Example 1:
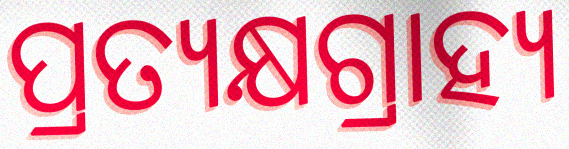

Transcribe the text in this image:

ପ୍ରତ୍ୟକ୍ଷଗ୍ରାହ୍ୟ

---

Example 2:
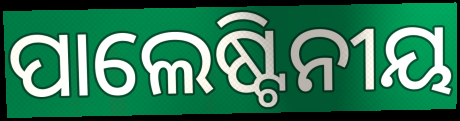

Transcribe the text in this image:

ପାଲେଷ୍ଟିନୀୟ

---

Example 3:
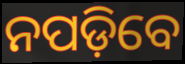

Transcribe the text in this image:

ନପଡ଼ିବେ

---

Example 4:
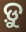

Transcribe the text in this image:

ଡ଼ୁ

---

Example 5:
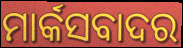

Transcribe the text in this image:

ମାର୍କସବାଦର